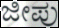
ಜೀಪು